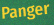
Panger